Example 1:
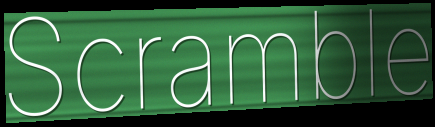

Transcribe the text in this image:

Scramble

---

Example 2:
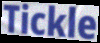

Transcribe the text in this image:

Tickle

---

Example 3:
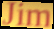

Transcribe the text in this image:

Jim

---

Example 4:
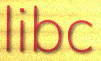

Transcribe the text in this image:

libc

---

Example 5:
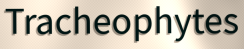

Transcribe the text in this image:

Tracheophytes